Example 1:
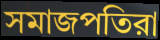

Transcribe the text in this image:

সমাজপতিরা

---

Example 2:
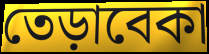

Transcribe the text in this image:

তেড়াবেকা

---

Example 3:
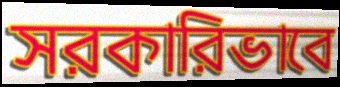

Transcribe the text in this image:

সরকারিভাবে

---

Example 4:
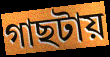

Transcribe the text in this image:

গাছটায়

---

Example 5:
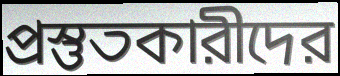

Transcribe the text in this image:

প্রস্তুতকারীদের